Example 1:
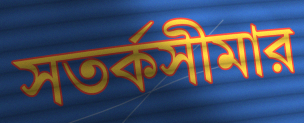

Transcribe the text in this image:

সতর্কসীমার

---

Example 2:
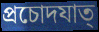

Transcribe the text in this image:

প্রচোদযাত্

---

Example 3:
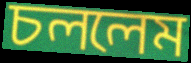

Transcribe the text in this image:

চললেম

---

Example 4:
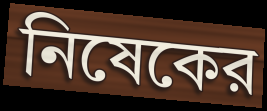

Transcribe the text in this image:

নিষেকের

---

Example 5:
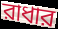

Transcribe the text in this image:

রাধার